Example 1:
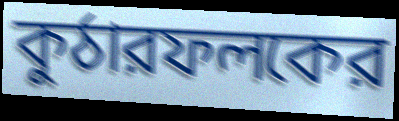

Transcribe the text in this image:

কুঠারফলকের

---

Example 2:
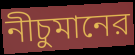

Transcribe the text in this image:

নীচুমানের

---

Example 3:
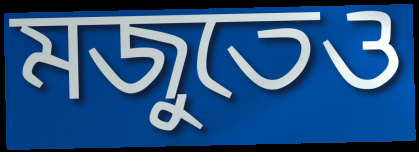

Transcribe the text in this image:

মজুতেও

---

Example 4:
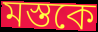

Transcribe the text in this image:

মস্তকে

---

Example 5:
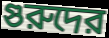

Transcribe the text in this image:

গুরুদের